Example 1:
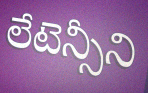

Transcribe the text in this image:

లేటెన్సీని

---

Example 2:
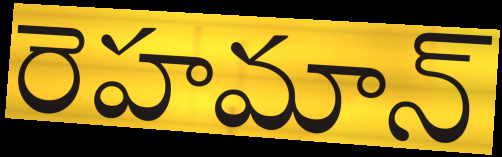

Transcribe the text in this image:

రెహమాన్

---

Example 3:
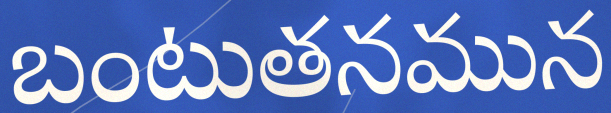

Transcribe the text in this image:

బంటుతనమున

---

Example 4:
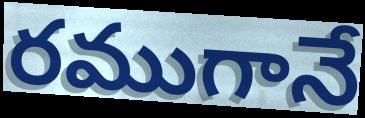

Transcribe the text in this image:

రముగానే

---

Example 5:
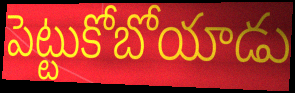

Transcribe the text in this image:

పెట్టుకోబోయాడు